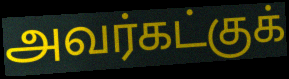
அவர்கட்குக்